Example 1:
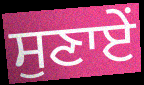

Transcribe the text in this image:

ਸੁਣਾਏਂ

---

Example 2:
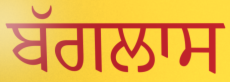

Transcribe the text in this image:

ਬੱਗਲਾਸ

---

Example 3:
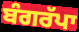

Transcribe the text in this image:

ਬੰਗਰੱਪਾ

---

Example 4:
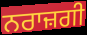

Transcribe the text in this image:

ਨਰਾਜ਼ਗੀ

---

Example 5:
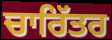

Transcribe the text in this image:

ਚਾਰਿੱਤਰ